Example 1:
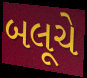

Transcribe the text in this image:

બલૂચે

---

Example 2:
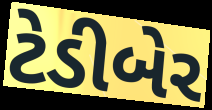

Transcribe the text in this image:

ટેડીબેર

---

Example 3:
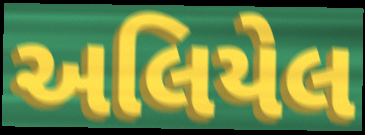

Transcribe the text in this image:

અલિયેલ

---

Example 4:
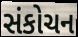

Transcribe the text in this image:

સંકોચન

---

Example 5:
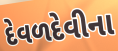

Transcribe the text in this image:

દેવળદેવીના